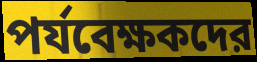
পর্যবেক্ষকদের